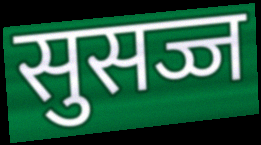
सुसज्ज